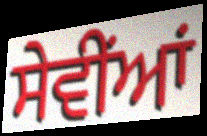
ਸੇਵੀਂਆਂ